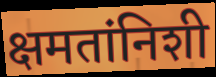
क्षमतांनिशी